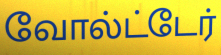
வோல்ட்டேர்